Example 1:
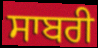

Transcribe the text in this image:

ਸਾਬਰੀ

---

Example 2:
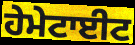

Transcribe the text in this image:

ਹੇਮੇਟਾਈਟ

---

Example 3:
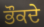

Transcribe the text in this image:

ਭੌਕਦੇ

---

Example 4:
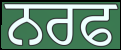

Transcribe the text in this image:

ਨਰਫ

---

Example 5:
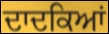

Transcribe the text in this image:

ਦਾਦਕਿਆਂ